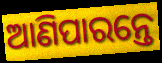
ଆଣିପାରନ୍ତେ